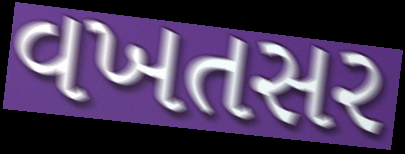
વખતસર